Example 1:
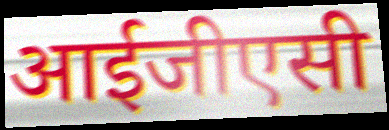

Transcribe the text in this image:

आईजीएसी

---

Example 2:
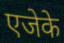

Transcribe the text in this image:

एजेके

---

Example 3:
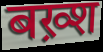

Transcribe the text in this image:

बख़्श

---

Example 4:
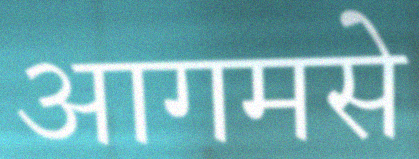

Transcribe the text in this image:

आगमसे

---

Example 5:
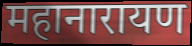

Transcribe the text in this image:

महानारायण